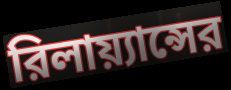
রিলায়্যান্সের